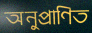
অনুপ্ৰাণিত